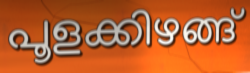
പൂളക്കിഴങ്ങ്